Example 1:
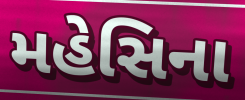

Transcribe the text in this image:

મહેસિના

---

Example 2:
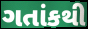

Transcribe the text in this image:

ગતાંકથી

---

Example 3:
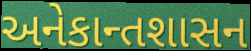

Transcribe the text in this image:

અનેકાન્તશાસન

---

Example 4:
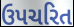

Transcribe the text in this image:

ઉપચરિત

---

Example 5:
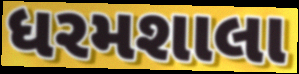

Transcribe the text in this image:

ધરમશાલા